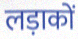
लड़ाकों